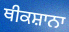
ਥੀਕਸ਼ਾਨਾ